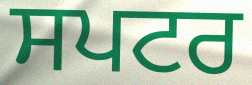
ਸਪਟਰ